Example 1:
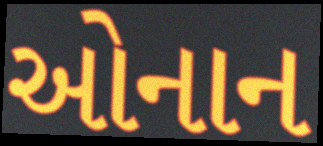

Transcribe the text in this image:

ઓનાન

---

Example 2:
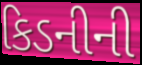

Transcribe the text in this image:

કિડનીની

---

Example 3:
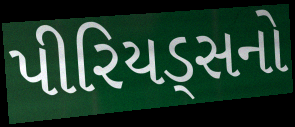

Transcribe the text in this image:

પીરિયડ્સનો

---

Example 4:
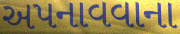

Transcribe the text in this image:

અપનાવવાના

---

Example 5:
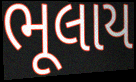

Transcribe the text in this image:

ભૂલાય